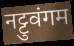
नट्टुवंगम